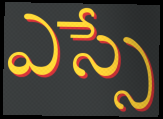
ఎస్సే